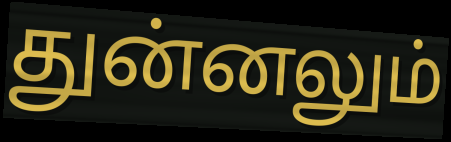
துன்னலும்